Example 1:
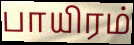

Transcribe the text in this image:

பாயிரம்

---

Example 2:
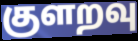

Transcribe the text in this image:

குளறவு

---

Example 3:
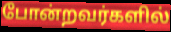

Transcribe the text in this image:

போன்றவர்களில்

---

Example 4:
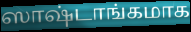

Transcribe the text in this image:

ஸாஷ்டாங்கமாக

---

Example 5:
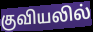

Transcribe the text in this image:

குவியலில்